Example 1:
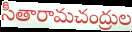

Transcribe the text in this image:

సీతారామచంద్రుల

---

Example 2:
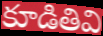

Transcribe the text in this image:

కూడితివి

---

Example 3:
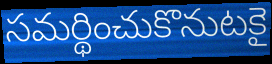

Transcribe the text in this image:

సమర్థించుకొనుటకై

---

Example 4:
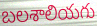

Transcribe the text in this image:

బలశాలియగు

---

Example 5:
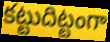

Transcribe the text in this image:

కట్టుదిట్టంగా